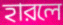
হারলে